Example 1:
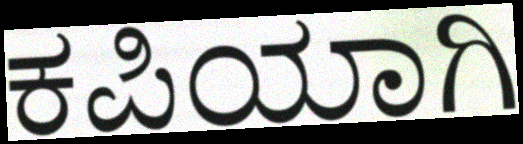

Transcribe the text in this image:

ಕಪಿಯಾಗಿ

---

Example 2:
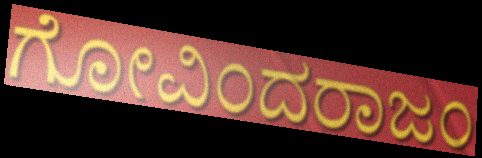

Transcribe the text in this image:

ಗೋವಿಂದರಾಜಂ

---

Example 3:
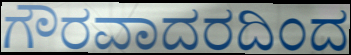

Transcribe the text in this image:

ಗೌರವಾದರದಿಂದ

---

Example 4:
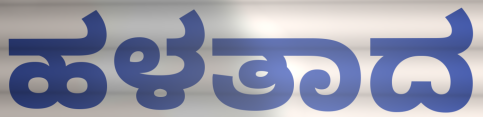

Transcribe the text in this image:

ಹಳತಾದ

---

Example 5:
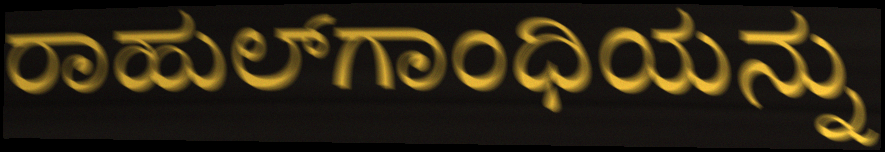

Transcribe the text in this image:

ರಾಹುಲ್‌ಗಾಂಧಿಯನ್ನು